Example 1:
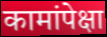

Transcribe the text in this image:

कामांपेक्षा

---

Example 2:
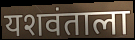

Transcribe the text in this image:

यशवंताला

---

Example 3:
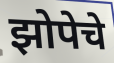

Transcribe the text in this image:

झोपेचे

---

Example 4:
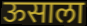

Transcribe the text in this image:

ऊसाला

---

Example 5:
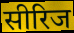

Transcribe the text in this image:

सीरिज